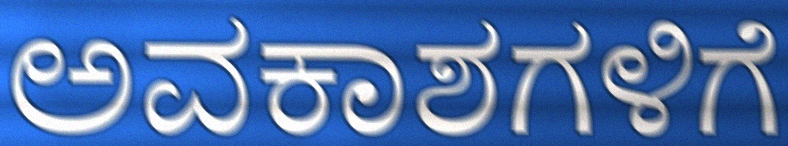
ಅವಕಾಶಗಳಿಗೆ